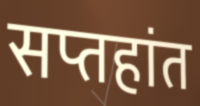
सप्तहांत